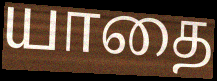
யாதை